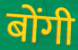
बोंगी